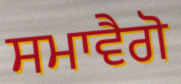
ਸਮਾਵੈਗੋ